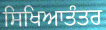
ਸਿਖਿਆਤੰਤਰ